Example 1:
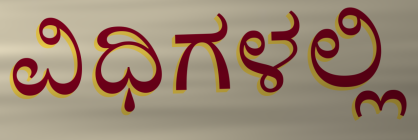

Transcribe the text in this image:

ವಿಧಿಗಳಲ್ಲಿ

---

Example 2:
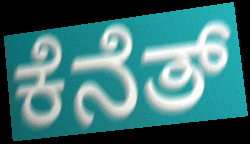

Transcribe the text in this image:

ಕೆನೆತ್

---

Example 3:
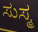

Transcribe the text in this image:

ಸುಸ್ಮ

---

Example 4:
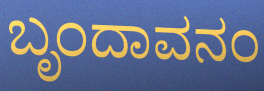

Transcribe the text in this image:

ಬೃಂದಾವನಂ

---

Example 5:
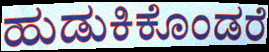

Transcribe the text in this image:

ಹುಡುಕಿಕೊಂಡರೆ